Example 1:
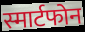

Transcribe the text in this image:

स्‍मार्टफोन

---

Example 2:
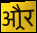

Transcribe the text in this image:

औ्रर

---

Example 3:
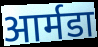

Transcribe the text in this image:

आर्मडा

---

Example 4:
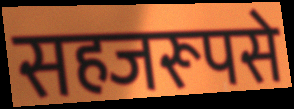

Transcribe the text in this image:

सहजरूपसे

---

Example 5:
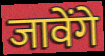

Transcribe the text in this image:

जावेंगे